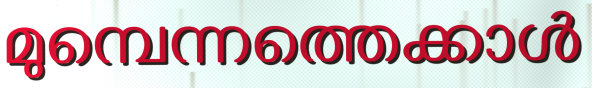
മുമ്പെന്നത്തെക്കാൾ